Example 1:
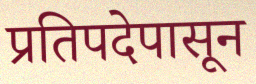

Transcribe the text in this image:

प्रतिपदेपासून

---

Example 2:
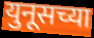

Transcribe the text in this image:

युनूसच्या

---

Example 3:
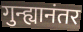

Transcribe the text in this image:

गुन्ह्यानंतर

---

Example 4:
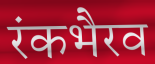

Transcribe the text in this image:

रंकभैरव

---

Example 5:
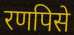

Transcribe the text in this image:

रणपिसे